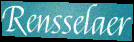
Rensselaer